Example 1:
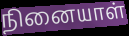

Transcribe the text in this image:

நினையாள்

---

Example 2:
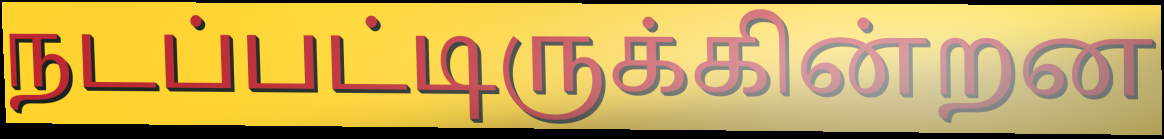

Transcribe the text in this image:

நடப்பட்டிருக்கின்றன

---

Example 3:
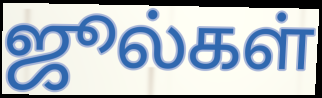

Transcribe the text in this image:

ஜூல்கள்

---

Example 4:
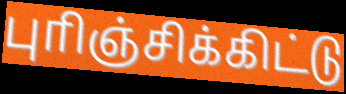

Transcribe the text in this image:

புரிஞ்சிக்கிட்டு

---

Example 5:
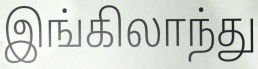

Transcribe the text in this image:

இங்கிலாந்து